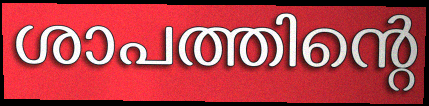
ശാപത്തിന്റെ